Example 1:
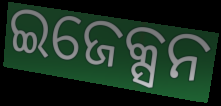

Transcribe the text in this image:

ଇଜେକ୍ସନ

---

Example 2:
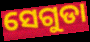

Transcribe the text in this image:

ସେଗୁଡା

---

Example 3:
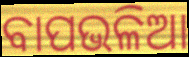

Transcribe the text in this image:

ବାପଭଳିଆ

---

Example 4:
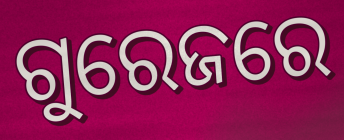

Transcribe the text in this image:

ଗୁରେଜରେ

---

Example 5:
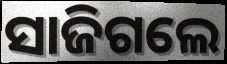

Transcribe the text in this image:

ସାଜିଗଲେ